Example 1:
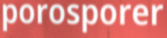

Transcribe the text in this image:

porosporer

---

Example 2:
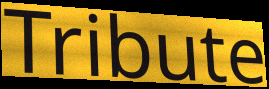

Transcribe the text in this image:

Tribute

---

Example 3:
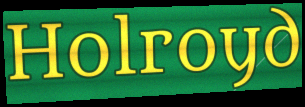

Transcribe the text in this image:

Holroyd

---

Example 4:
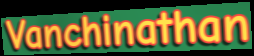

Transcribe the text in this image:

Vanchinathan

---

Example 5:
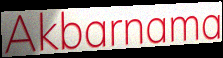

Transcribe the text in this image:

Akbarnama